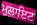
ਮੁਲਾਇਟ